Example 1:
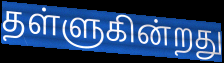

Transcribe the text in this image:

தள்ளுகின்றது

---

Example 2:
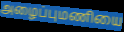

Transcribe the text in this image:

அழைப்புமணியை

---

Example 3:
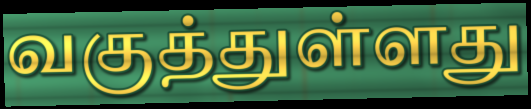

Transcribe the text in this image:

வகுத்துள்ளது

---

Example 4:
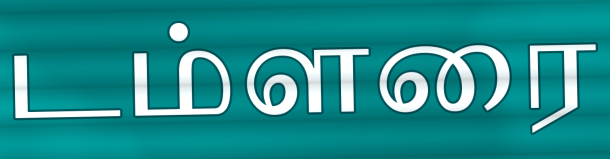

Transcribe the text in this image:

டம்ளரை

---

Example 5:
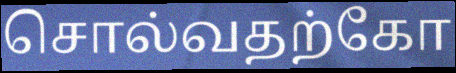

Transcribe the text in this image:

சொல்வதற்கோ